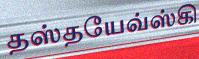
தஸ்தயேவ்ஸ்கி